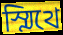
স্মিথে